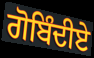
ਗੋਬਿੰਦੀਏ